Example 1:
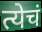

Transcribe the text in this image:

त्येचं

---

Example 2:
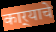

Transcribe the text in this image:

कार्याचे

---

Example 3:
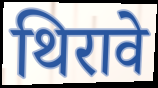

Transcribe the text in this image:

थिरावे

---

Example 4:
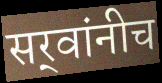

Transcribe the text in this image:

सर्वांनीच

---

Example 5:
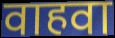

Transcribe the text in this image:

वाहवा